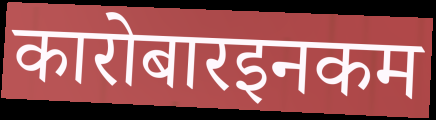
कारोबारइनकम